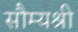
सौम्यश्री